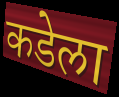
कडेला